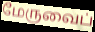
மேருவைப்